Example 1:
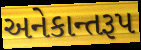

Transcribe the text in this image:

અનેકાન્તરૂપ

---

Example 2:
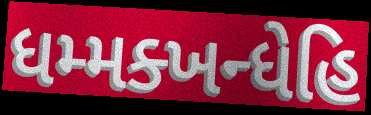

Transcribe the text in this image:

ધમ્મક્ખન્ધેહિ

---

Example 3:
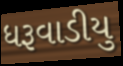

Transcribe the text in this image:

ધરૂવાડીયુ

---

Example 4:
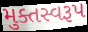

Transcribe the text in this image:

મુક્તસ્વરૂપ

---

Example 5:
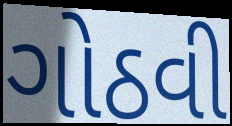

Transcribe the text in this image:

ગોઠવી